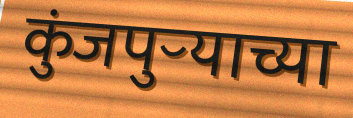
कुंजपुऱ्याच्या